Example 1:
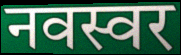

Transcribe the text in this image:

नवस्वर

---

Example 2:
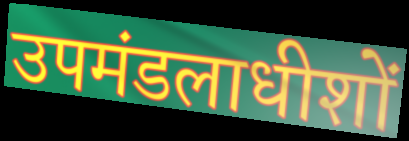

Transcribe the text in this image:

उपमंडलाधीशों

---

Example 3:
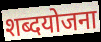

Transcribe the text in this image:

शब्दयोजना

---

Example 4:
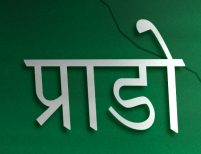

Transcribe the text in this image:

प्राडो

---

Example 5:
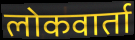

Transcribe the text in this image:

लोकवार्ता